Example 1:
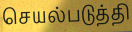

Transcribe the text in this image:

செயல்படுத்தி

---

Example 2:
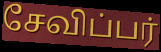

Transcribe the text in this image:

சேவிப்பர்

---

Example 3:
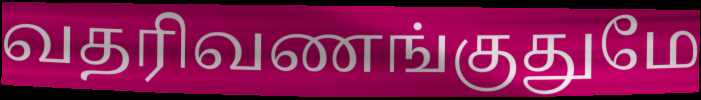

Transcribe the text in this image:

வதரிவணங்குதுமே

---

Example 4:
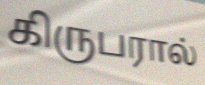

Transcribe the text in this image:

கிருபரால்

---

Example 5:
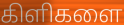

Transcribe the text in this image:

கிளிகளை